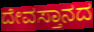
ದೇವಸ್ತಾನದ